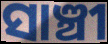
ସାଞ୍ଚୀ